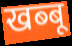
खब्‍बू